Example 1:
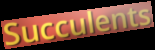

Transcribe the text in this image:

Succulents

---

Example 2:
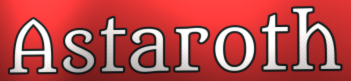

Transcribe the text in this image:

Astaroth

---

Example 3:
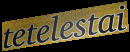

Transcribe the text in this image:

tetelestai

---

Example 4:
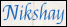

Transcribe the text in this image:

Nikshay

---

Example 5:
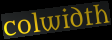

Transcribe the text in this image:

colwidth